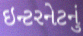
ઇન્ટરનેટનું